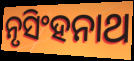
ନୃସିଂହନାଥ